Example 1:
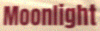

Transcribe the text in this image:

Moonlight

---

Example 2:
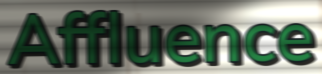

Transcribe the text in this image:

Affluence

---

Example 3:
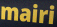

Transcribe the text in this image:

mairi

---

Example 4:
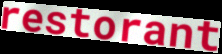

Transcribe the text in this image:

restorant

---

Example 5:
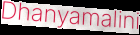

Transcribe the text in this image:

Dhanyamalini